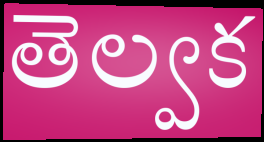
తెల్వక